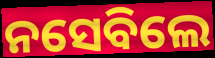
ନସେବିଲେ